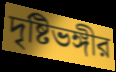
দৃষ্টিভঙ্গীর